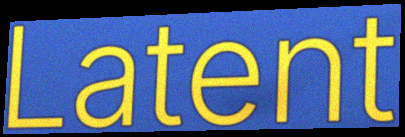
Latent